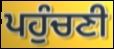
ਪਹੁੰਚਣੀ